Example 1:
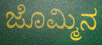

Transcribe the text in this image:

ಜೊಮ್ಮಿನ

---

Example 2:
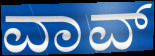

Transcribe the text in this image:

ವಾವ್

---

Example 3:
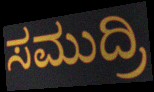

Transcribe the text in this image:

ಸಮುದ್ರಿ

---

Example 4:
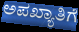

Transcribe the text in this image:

ಅಪಖ್ಯಾತಿಗೆ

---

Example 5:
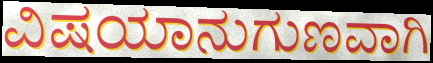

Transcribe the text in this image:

ವಿಷಯಾನುಗುಣವಾಗಿ